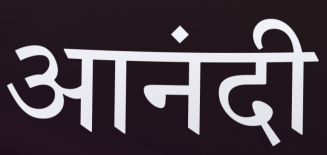
आनंदी